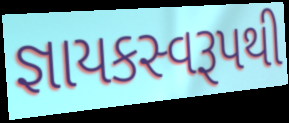
જ્ઞાયકસ્વરૂપથી